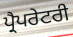
ਪ੍ਰੈਪਰੇਟਰੀ